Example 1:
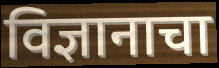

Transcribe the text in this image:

विज्ञानाचा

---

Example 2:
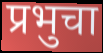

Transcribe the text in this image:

प्रभुचा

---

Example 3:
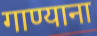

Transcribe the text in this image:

गाण्याना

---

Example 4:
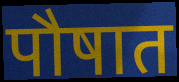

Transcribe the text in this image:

पौषात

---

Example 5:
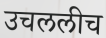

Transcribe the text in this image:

उचललीच